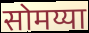
सोमय्या